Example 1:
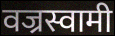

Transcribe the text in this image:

वज्रस्वामी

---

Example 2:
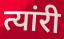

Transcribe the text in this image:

त्यांरी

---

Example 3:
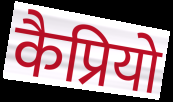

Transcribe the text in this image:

कैप्रियो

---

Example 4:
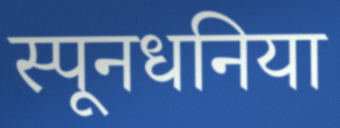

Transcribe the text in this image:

स्पूनधनिया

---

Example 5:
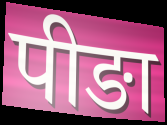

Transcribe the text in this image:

पीङा